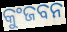
କୁଂଜବନ